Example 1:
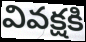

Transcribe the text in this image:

వివక్షకి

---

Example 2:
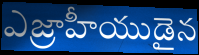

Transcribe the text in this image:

ఎజ్రాహీయుడైన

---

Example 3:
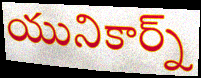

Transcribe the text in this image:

యునికార్న్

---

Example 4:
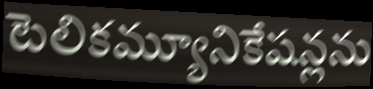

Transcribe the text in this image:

టెలికమ్యూనికేషన్లను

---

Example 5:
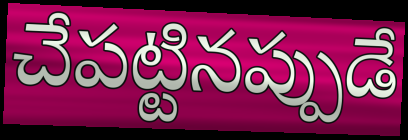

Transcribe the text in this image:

చేపట్టినప్పుడే